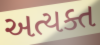
અત્યક્ત